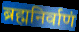
ब्रह्मनिर्वाणं